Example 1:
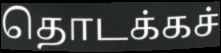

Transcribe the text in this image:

தொடக்கச்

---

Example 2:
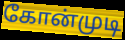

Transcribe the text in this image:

கோன்முடி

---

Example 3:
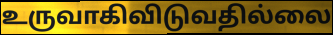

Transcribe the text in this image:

உருவாகிவிடுவதில்லை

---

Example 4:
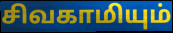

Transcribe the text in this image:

சிவகாமியும்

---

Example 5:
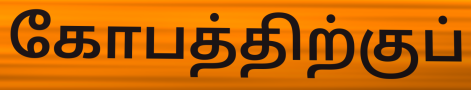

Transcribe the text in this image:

கோபத்திற்குப்